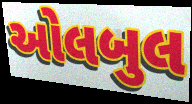
ઓલબુલ